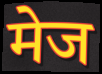
मेज